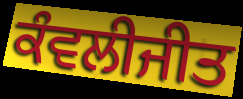
ਕੰਵਲੀਜੀਤ